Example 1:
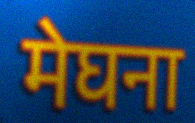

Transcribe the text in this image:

मेघना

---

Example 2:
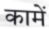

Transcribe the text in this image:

कामें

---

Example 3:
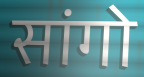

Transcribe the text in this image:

सांगो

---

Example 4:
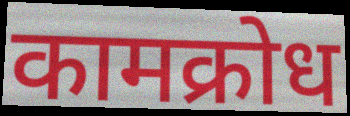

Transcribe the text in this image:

कामक्रोध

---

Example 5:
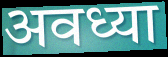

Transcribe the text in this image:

अवध्या